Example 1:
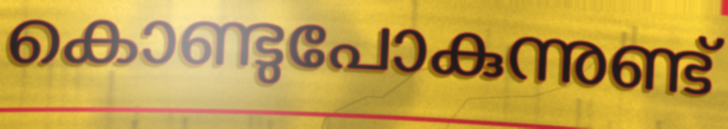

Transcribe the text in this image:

കൊണ്ടുപോകുന്നുണ്ട്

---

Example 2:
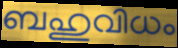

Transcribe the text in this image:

ബഹുവിധം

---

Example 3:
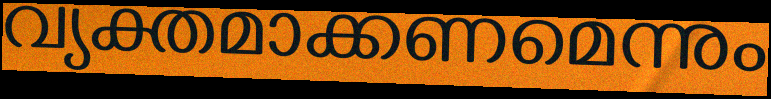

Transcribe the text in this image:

വ്യക്തമാക്കണമെന്നും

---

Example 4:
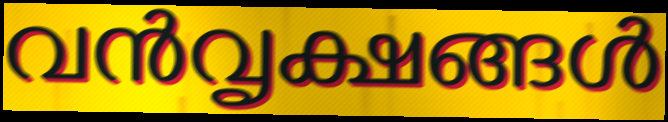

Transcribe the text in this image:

വൻവൃക്ഷങ്ങൾ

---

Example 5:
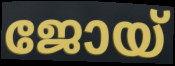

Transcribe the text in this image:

ജോയ്